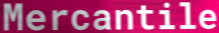
Mercantile